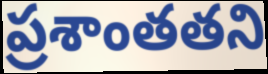
ప్రశాంతతని